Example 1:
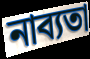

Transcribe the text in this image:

নাব্যতা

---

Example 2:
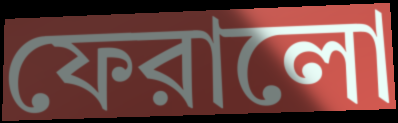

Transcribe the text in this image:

ফেরালো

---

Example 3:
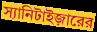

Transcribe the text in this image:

স্যানিটাইজ়ারের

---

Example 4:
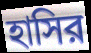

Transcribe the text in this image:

হাসির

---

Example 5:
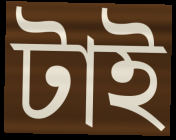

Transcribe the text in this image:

টাই